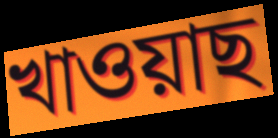
খাওয়াছ